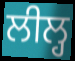
ਲੀਲ੍ਹ